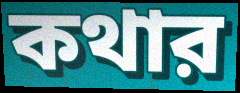
কথার